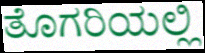
ತೊಗರಿಯಲ್ಲಿ